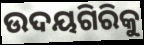
ଉଦୟଗିରିକୁ